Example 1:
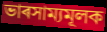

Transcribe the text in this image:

ভাৰসাম্যমূলক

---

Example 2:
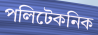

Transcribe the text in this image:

পলিটেকনিক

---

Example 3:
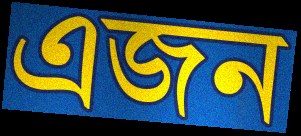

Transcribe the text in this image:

এজন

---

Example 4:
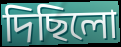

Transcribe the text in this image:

দিছিলো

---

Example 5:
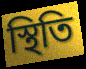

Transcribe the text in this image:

স্থিতি